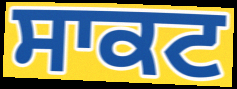
ਸਾਕਟ